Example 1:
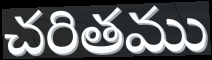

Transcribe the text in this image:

చరితము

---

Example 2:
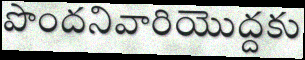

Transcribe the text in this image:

పొందనివారియొద్దకు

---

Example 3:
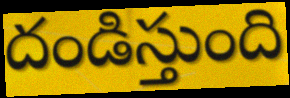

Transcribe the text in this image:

దండిస్తుంది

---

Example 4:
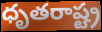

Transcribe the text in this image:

ధృతరాష్ట్ర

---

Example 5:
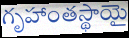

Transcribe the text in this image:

గృహాంతస్థాయై